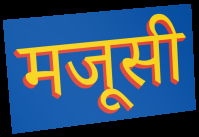
मजूसी